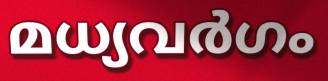
മധ്യവർഗം